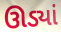
ઊડ્યાં